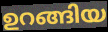
ഉറങ്ങിയ